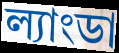
ল্যাংডা